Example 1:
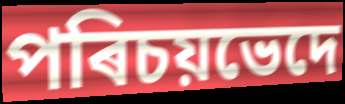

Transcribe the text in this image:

পৰিচয়ভেদে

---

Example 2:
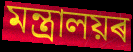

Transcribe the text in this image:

মন্ত্ৰালয়ৰ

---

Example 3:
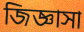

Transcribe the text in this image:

জিজ্ঞাসা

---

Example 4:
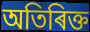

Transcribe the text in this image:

অতিৰিক্ত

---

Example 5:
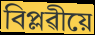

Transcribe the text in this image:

বিপ্লৱীয়ে